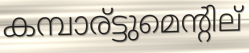
കമ്പാര്ട്ടുമെന്റില്